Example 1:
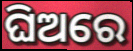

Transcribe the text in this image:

ଘିଅରେ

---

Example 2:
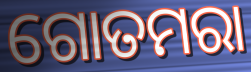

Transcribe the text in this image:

ଗୋତମରା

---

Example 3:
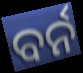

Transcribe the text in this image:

ବର୍ନ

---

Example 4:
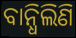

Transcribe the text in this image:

ବାନ୍ଧିଲିଣି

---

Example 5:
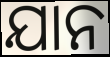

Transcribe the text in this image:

ଯାନ